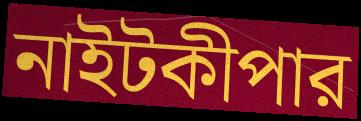
নাইটকীপার